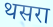
थसरा